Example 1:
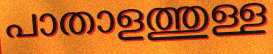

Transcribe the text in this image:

പാതാളത്തുള്ള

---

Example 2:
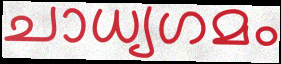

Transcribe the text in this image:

ചാധ്യഗമം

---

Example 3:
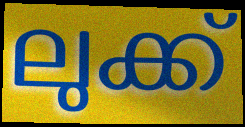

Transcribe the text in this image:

ലുക്ക്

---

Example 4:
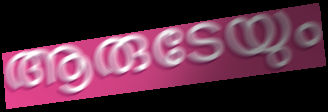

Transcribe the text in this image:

ആരുടേയും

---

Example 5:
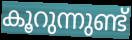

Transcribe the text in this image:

കൂറുന്നുണ്ട്